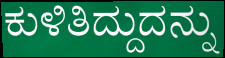
ಕುಳಿತಿದ್ದುದನ್ನು